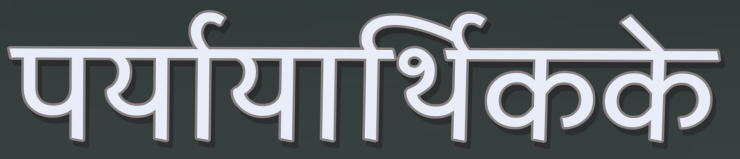
पर्यायार्थिकके